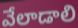
వేలాడాలి